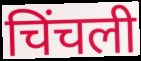
चिंचली